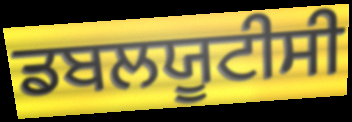
ਡਬਲਯੂਟੀਸੀ